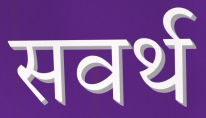
सवर्थ